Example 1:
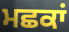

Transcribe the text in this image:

ਮਛਕਾਂ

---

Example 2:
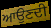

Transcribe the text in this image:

ਆਉਣਦੀ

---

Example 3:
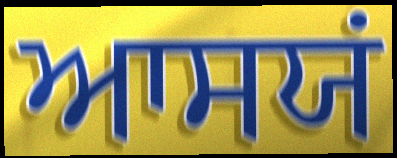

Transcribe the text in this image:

ਆਸਯਂ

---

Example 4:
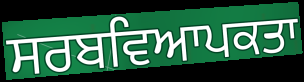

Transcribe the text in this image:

ਸਰਬਵਿਆਪਕਤਾ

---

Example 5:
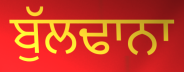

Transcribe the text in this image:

ਬੁੱਲਢਾਨਾ